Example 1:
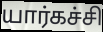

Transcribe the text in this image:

யார்கச்சி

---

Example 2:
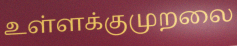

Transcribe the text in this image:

உள்ளக்குமுறலை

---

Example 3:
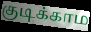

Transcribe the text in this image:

குடிக்காம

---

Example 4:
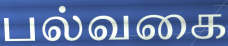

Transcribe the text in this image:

பல்வகை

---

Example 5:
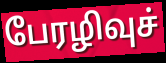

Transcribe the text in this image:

பேரழிவுச்